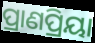
ପ୍ରାଣପ୍ରିୟା